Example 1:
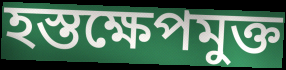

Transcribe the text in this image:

হস্তক্ষেপমুক্ত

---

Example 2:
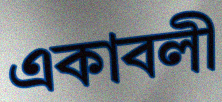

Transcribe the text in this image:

একাবলী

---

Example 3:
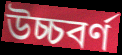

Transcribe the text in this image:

উচ্চবর্ণ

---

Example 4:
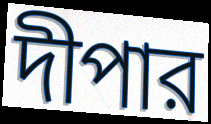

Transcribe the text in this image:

দীপার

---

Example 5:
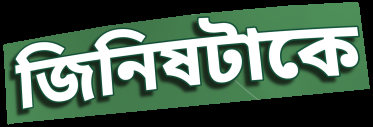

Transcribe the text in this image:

জিনিষটাকে